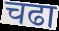
चढा